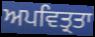
ਅਪਵਿਤ੍ਰਤਾ